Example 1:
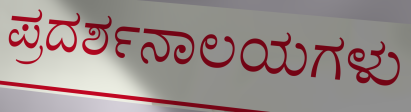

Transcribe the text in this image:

ಪ್ರದರ್ಶನಾಲಯಗಳು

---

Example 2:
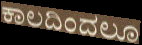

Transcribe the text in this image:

ಕಾಲದಿಂದಲೂ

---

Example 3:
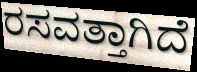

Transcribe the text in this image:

ರಸವತ್ತಾಗಿದೆ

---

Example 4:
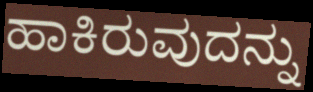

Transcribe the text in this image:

ಹಾಕಿರುವುದನ್ನು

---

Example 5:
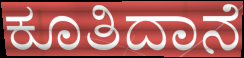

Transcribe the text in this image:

ಕೂತಿದಾನೆ